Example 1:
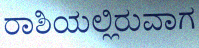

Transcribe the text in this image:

ರಾಶಿಯಲ್ಲಿರುವಾಗ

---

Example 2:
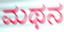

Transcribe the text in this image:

ಮಥನ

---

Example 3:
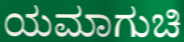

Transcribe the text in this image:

ಯಮಾಗುಚಿ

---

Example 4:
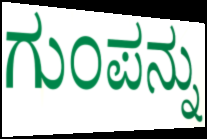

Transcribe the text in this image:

ಗುಂಪನ್ನು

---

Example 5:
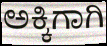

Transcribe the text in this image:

ಅಕ್ಕಿಗಾಗಿ